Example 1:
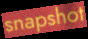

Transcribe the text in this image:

snapshot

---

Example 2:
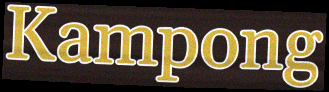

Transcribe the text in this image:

Kampong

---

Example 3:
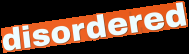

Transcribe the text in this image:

disordered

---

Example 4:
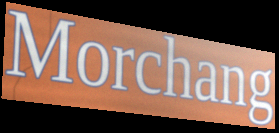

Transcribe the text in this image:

Morchang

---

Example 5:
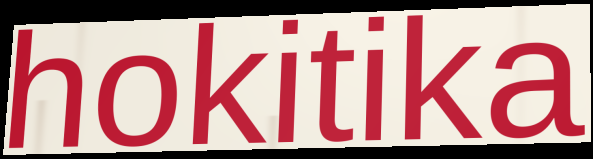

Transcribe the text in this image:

hokitika